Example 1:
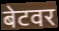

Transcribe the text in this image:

बेटवर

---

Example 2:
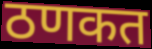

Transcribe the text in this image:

ठणकत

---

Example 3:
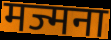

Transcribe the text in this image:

मज्मना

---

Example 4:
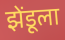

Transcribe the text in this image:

झेंडूला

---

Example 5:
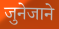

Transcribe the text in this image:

जुनेजाने